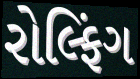
રોલ્ફિંગ